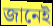
জানেই